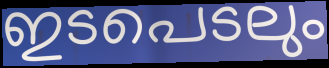
ഇടപെടലും